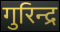
गुरिन्द्र